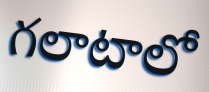
గలాటాలో